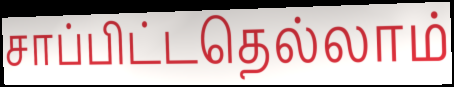
சாப்பிட்டதெல்லாம்